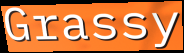
Grassy